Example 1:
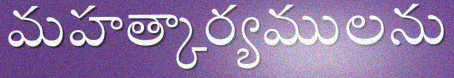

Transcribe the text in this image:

మహత్కార్యములను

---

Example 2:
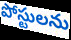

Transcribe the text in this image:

పోస్టులను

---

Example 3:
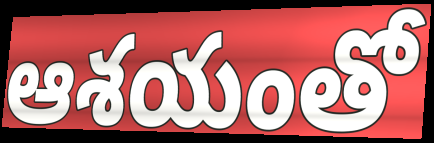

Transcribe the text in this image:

ఆశయంతో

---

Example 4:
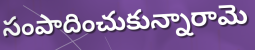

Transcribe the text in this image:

సంపాదించుకున్నారామె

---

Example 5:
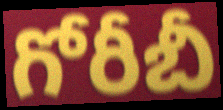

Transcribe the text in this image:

గోరీబీ